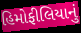
હિમોફીલિયાનું